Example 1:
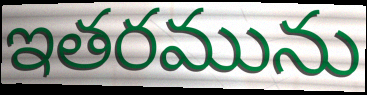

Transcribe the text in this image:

ఇతరమును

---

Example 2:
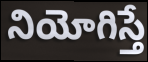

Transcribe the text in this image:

నియోగిస్తే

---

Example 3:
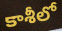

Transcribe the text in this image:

కాశీలో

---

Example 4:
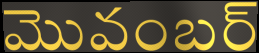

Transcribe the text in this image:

మొవంబర్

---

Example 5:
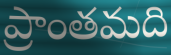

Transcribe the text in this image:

ప్రాంతమది